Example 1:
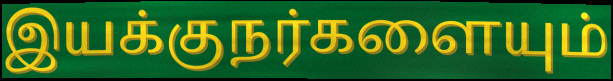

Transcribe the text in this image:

இயக்குநர்களையும்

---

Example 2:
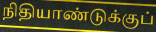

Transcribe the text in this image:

நிதியாண்டுக்குப்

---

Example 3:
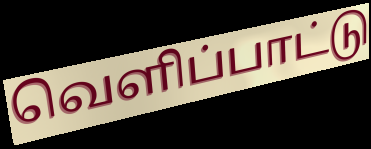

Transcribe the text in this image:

வெளிப்பாட்டு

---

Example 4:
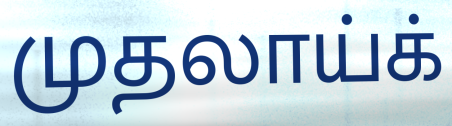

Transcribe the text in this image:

முதலாய்க்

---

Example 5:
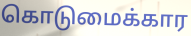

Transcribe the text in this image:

கொடுமைக்கார